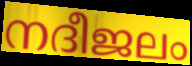
നദീജലം